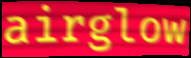
airglow